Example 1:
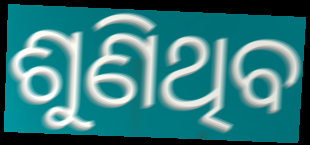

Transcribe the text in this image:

ଶୁଣିଥିବ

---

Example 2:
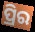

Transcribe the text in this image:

ପ୍ରିର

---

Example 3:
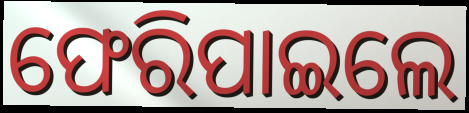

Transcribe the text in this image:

ଫେରିପାଇଲେ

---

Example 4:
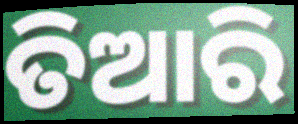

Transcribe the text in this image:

ତିଆରି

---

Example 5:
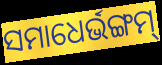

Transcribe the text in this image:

ସମାଧେର୍ଭଙ୍ଗମ୍